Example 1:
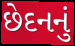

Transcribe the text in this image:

છેદનનું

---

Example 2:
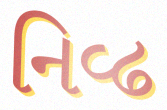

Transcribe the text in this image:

નિવ્ઢ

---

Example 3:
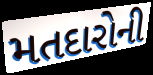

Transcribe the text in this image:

મતદારોની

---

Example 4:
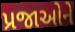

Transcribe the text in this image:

પ્રજાઓને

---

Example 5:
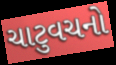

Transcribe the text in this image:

ચાટુવચનો